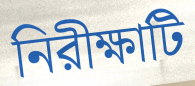
নিরীক্ষাটি